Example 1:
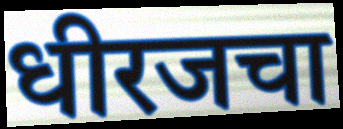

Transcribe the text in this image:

धीरजचा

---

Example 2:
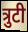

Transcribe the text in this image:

त्रुटी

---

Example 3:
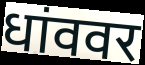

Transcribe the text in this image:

धांववर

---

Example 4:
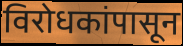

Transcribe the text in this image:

विरोधकांपासून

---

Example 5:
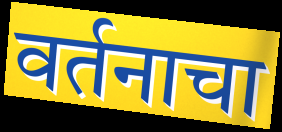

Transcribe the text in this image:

वर्तनाचा